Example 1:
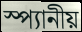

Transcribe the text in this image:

স্প্যানীয়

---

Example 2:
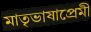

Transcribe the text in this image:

মাতৃভাষাপ্রেমী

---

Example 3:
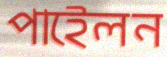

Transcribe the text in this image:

পাইেলন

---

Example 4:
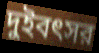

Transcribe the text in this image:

দুইবৎসর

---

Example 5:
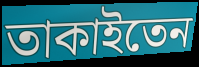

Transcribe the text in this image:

তাকাইতেন